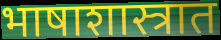
भाषाशास्त्रात